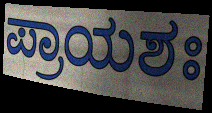
ಪ್ರಾಯಶಃ